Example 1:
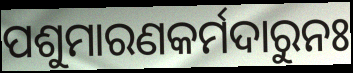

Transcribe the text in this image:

ପଶୁମାରଣକର୍ମଦାରୁନଃ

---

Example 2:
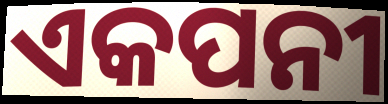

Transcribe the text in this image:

ଏକପନୀ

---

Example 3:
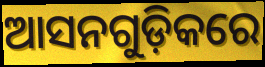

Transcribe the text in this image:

ଆସନଗୁଡ଼ିକରେ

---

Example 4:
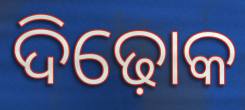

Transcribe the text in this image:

ଦିଢ଼ୋକ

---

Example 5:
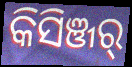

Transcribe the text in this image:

କିସିଞ୍ଜର୍